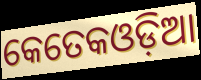
କେତେକଓଡ଼ିଆ